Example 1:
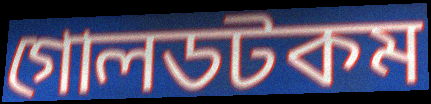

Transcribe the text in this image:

গোলডটকম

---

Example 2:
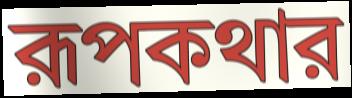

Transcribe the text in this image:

রূপকথার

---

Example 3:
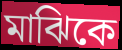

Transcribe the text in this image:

মাঝিকে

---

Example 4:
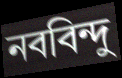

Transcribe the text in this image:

নববিন্দু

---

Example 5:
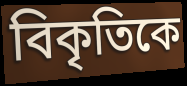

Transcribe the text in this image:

বিকৃতিকে